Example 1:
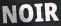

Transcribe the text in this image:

NOIR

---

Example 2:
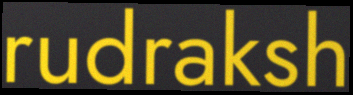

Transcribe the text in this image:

rudraksh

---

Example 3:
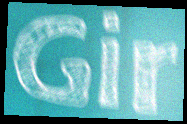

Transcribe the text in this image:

Gir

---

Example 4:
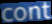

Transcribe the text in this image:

cont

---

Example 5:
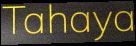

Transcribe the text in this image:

Tahaya